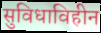
सुविधाविहीन